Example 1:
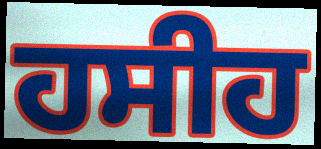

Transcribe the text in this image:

ਹਸੀਹ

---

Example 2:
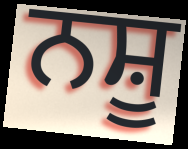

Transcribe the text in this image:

ਨਸ਼ੂ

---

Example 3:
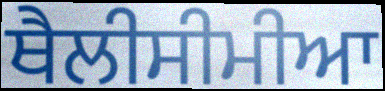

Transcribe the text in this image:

ਥੈਲੀਸੀਮੀਆ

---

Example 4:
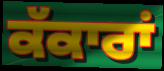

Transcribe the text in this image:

ਕੱਕਾਰਾਂ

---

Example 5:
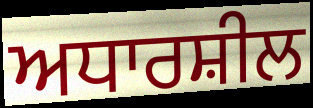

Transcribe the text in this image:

ਅਧਾਰਸ਼ੀਲ